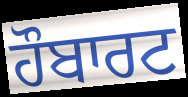
ਹੌਬਾਰਟ